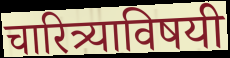
चारित्र्याविषयी